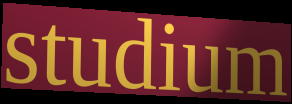
studium